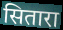
सितारा